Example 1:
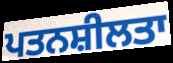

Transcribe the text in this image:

ਪਤਨਸ਼ੀਲਤਾ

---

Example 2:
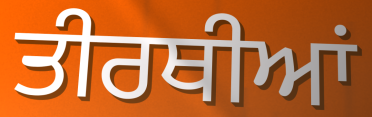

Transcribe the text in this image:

ਤੀਰਥੀਆਂ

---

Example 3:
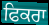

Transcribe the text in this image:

ਫਿਕਰਾ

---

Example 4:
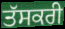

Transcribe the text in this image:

ਤੱਸਕਰੀ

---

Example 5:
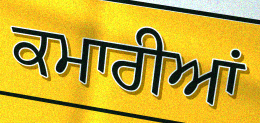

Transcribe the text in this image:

ਕਮਾਰੀਆਂ